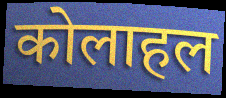
कोलाहल